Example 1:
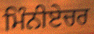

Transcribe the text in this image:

ਮਿੰਨੀਏਚਰ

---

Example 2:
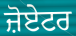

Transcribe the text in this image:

ਜ਼ੋਏਟਰ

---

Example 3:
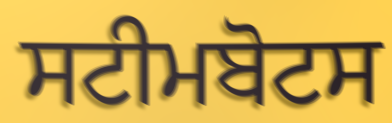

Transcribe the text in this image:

ਸਟੀਮਬੋਟਸ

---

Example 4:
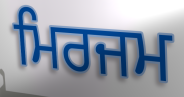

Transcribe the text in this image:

ਮਿਰਜਮ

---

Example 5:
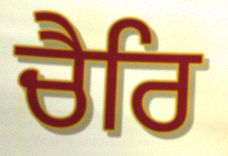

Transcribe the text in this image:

ਚੈਰਿ